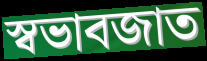
স্বভাবজাত